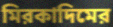
মিরকাদিমের